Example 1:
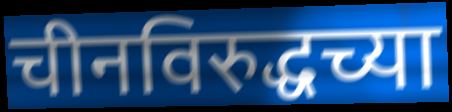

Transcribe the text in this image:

चीनविरुद्धच्या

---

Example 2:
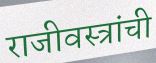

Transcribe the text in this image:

राजीवस्त्रांची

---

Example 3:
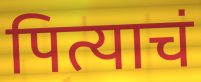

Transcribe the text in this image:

पित्याचं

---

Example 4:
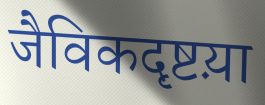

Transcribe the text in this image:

जैविकदृष्टय़ा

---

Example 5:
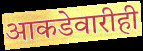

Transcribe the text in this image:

आकडेवारीही